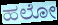
ಹಲೋ